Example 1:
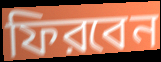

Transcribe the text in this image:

ফিরবেন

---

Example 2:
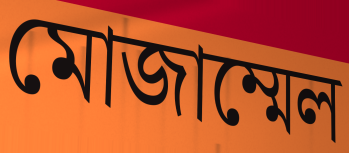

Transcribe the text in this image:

মোজাম্মেল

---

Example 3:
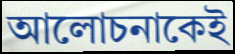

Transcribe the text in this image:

আলোচনাকেই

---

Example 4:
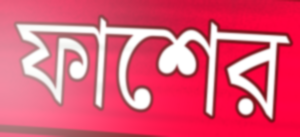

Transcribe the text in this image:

ফাশের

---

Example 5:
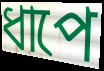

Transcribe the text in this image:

ধাপে